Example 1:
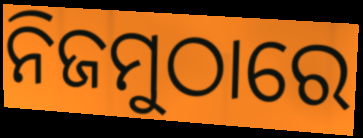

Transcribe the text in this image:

ନିଜମୁଠାରେ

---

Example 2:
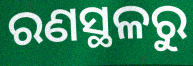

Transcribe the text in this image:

ରଣସ୍ଥଳରୁ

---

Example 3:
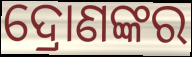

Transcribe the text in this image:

ଦ୍ରୋଣଙ୍କର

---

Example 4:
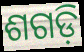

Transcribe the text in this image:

ଶଗଡ଼ି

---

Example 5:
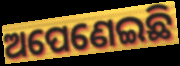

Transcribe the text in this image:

ଅପେଣେଇଛି